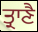
ਤ੍ਰਾਣੈ